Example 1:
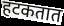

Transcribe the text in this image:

हटकतात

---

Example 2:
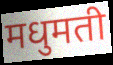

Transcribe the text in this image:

मधुमती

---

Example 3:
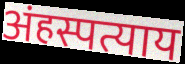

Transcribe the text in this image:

अंहस्पत्याय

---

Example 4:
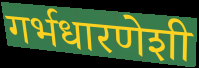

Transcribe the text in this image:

गर्भधारणेशी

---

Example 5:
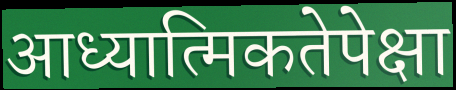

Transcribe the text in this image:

आध्यात्मिकतेपेक्षा